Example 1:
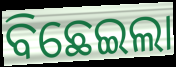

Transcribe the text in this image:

ବିଛେଇଲା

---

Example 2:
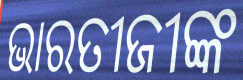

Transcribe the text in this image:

ଭାରତୀଜୀଙ୍କ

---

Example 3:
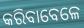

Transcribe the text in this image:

କରିବାବେଳେ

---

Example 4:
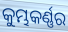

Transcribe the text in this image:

କୁମ୍ଭକର୍ଣ୍ଣର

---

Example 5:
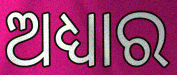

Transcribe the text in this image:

ଅଧ୍ୟାର